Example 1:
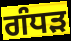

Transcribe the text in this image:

ਗੰਧੜ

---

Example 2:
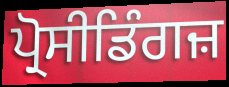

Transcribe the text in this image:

ਪ੍ਰੋਸੀਡਿੰਗਜ਼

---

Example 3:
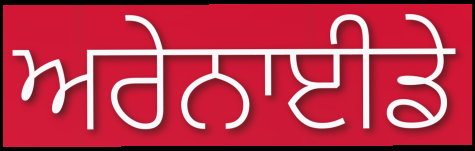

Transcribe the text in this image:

ਅਰੇਨਾਈਡੇ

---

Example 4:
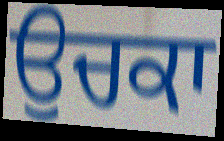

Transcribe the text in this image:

ਉਚਕਾ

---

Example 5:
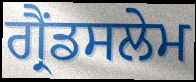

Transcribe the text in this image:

ਗ੍ਰੈਂਡਸਲੇਮ